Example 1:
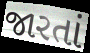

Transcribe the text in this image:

જારતાં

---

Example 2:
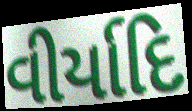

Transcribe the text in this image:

વીર્યાદિ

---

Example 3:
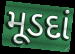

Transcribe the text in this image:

મૂડદાં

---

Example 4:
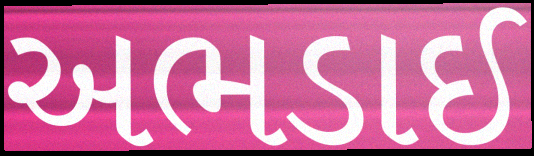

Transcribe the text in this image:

અભડાઈ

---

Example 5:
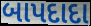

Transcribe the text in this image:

બાપદાદા